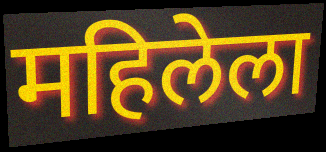
महिलेला